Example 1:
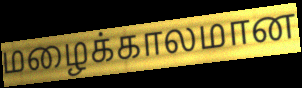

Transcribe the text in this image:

மழைக்காலமான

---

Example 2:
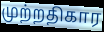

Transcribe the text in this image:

முற்றதிகார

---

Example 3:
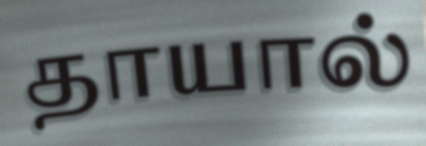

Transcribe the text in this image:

தாயால்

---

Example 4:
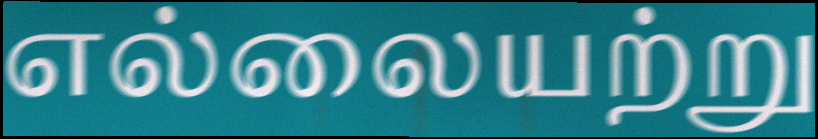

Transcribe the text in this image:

எல்லையற்று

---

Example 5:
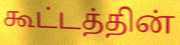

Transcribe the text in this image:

கூட்டத்தின்